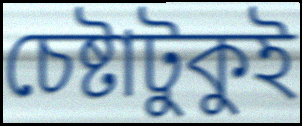
চেষ্টাটুকুই